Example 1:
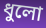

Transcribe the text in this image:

ধুলো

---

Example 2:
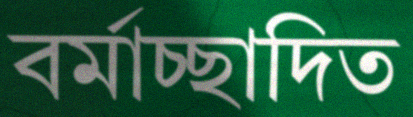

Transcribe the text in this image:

বর্মাচ্ছাদিত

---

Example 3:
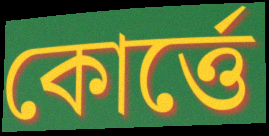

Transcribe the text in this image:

কোর্ত্তে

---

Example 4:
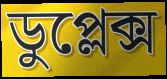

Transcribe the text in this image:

ডুপ্লেক্স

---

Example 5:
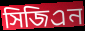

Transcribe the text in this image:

সিজিএন